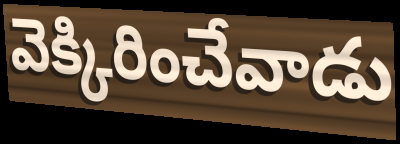
వెక్కిరించేవాడు